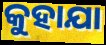
କୁହାଯା